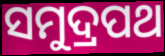
ସମୁଦ୍ରପଥ